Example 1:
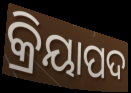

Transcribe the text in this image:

କ୍ରିୟାପଦ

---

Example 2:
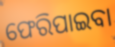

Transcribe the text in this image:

ଫେରିପାଇବା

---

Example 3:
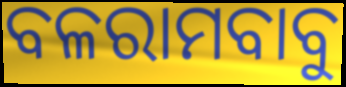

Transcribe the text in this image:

ବଳରାମବାବୁ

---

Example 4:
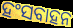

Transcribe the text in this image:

ହଂସବାହନ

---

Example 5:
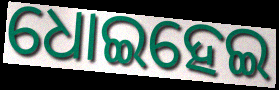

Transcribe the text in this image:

ଧୋଇହେଇ